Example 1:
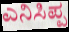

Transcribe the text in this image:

ಎನಿಸಿಪ್ಪ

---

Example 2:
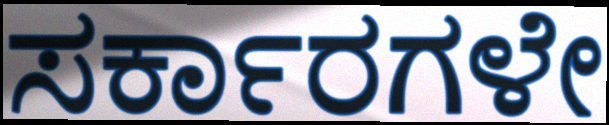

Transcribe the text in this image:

ಸರ್ಕಾರಗಳೇ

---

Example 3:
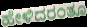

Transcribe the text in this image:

ಹೇಳಿದರಂತೂ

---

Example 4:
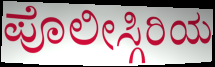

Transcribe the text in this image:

ಪೊಲೀಸ್ಗಿರಿಯ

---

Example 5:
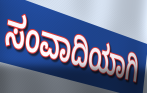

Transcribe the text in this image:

ಸಂವಾದಿಯಾಗಿ